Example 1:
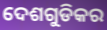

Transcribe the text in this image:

ଦେଶଗୁଡିକର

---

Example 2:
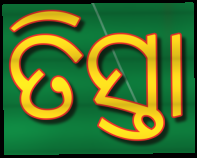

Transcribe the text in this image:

ତିସ୍ତା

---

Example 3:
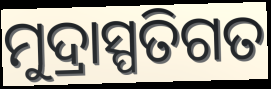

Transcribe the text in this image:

ମୁଦ୍ରାସ୍ପତିଗତ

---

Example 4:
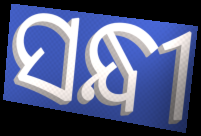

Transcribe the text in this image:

ସନ୍ଧୀ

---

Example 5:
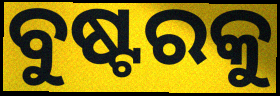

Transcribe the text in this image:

ବୁଷ୍ଟରକୁ